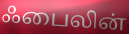
ஃபைலின்